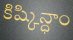
కిష్కిన్ధాం